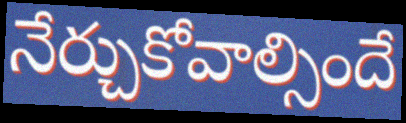
నేర్చుకోవాల్సిందే